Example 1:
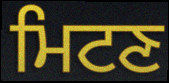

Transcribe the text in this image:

ਮਿਟਣ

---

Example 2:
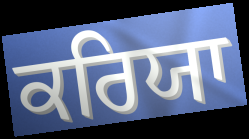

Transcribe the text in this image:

ਕਰਿਯਾ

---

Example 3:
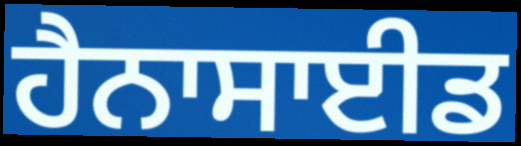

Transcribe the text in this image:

ਹੈਨਾਸਾਈਡ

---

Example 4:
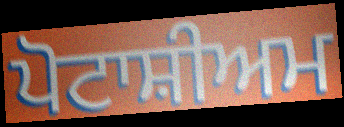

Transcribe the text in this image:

ਪੋਟਾਸ਼ੀਅਮ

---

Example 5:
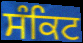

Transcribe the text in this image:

ਸੰਕਿਟ